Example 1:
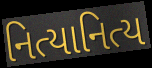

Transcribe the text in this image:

નિત્યાનિત્ય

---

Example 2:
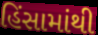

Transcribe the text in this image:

હિંસામાંથી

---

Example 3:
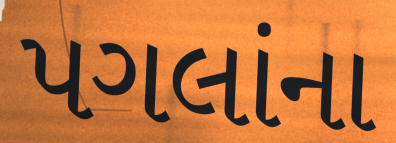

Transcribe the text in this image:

પગલાંના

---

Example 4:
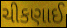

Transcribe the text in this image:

ચીકણાઈ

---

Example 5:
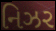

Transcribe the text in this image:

નિઝર